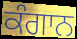
ਕੰਗਾਨ